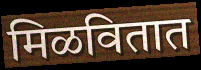
मिळवितात